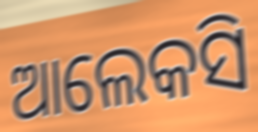
ଆଲେକସି